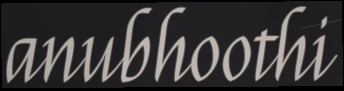
anubhoothi